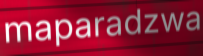
maparadzwa